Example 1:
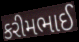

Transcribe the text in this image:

કરીમભાઈ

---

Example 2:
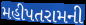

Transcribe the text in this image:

મહીપતરામની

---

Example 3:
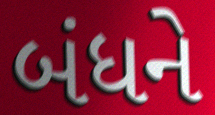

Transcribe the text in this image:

બંધને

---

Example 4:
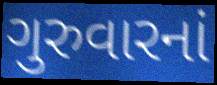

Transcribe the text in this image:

ગુરુવારનાં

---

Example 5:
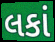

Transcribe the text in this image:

લકાં